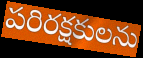
పరిరక్షకులను